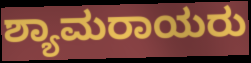
ಶ್ಯಾಮರಾಯರು